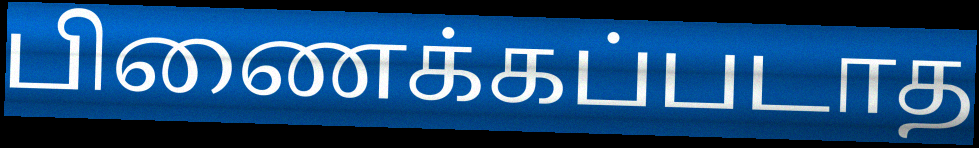
பிணைக்கப்படாத